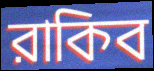
রাকিব